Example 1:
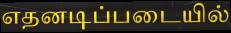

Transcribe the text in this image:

எதனடிப்படையில்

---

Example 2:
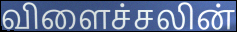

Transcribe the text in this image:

விளைச்சலின்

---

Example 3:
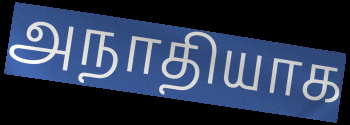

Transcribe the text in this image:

அநாதியாக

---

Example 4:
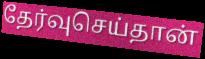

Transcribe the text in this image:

தேர்வுசெய்தான்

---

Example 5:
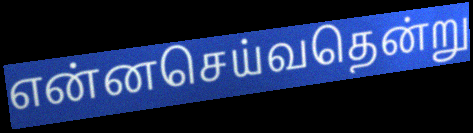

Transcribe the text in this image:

என்னசெய்வதென்று